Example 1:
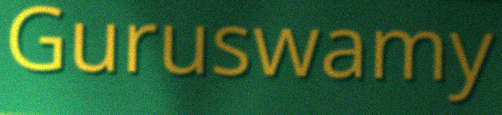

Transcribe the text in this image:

Guruswamy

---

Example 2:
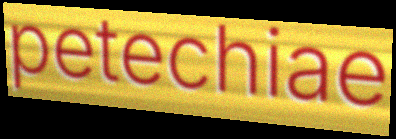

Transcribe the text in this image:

petechiae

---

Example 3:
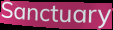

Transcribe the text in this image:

Sanctuary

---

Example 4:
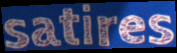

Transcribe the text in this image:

satires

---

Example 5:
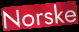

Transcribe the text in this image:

Norske